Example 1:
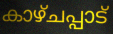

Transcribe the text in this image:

കാഴ്ചപ്പാട്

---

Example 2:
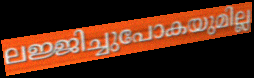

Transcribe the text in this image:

ലജ്ജിച്ചുപോകയുമില്ല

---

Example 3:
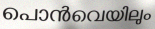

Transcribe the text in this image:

പൊൻവെയിലും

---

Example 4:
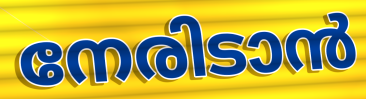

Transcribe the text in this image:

നേരിടാൻ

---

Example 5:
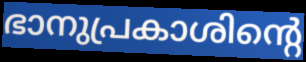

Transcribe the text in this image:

ഭാനുപ്രകാശിന്റെ